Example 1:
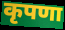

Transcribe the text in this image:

कृपणा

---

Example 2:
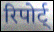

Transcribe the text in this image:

रिपोर्ट्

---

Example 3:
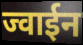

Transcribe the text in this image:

ज्वाईन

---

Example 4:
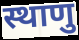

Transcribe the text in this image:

स्थाणु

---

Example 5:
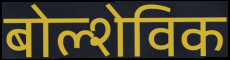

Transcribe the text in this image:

बोल्शेविक